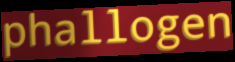
phallogen